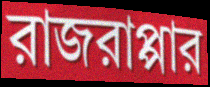
রাজরাপ্পার